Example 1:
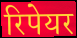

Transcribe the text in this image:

रिपेयर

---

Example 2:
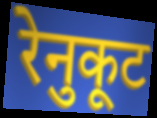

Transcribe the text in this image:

रेनुकूट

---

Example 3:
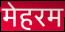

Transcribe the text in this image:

मेहरम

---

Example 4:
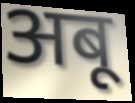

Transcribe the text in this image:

अबू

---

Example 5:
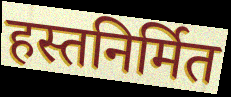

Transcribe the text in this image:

हस्तनिर्मित